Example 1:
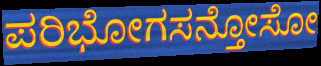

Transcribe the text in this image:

ಪರಿಭೋಗಸನ್ತೋಸೋ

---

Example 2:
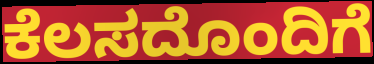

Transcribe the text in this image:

ಕೆಲಸದೊಂದಿಗೆ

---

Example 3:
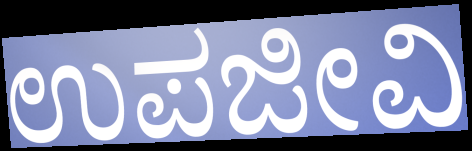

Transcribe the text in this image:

ಉಪಜೀವಿ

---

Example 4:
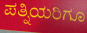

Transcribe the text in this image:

ಪತ್ನಿಯರಿಗೂ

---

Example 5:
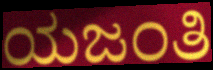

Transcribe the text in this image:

ಯಜಂತಿ